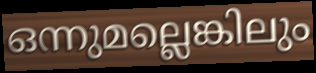
ഒന്നുമല്ലെങ്കിലും